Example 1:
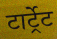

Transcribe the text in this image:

टार्ट्रेट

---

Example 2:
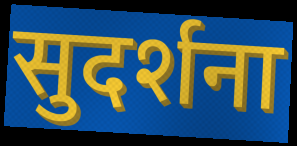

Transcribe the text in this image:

सुदर्शना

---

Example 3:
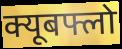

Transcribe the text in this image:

क्यूबफ्लो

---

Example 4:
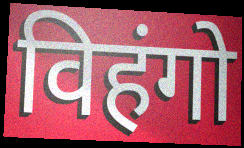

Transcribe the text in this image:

विहंगो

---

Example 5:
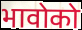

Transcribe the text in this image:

भावोको